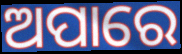
ଅପାରେ